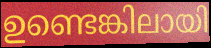
ഉണ്ടെങ്കിലായി